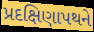
પ્રદક્ષિણાપથને